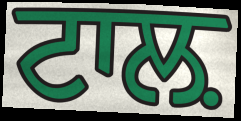
ਟਾਲ਼